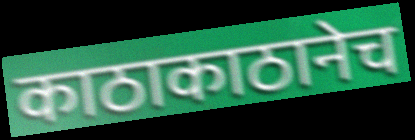
काठाकाठानेच